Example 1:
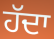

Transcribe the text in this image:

ਹੱਦਾ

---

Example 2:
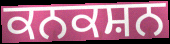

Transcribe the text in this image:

ਕਨਕਸ਼ਨ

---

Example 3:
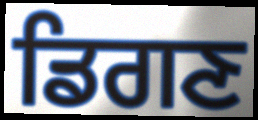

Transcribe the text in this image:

ਡਿਗਣ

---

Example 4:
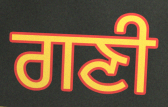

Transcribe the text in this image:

ਗਣੀ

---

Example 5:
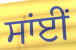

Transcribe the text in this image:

ਸਾਂਈਂ